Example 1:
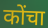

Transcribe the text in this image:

कोंचा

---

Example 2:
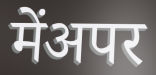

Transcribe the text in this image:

मेंअपर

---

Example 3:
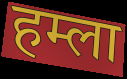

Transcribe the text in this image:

हम्ला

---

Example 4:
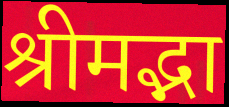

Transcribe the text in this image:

श्रीमद्भा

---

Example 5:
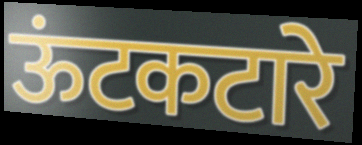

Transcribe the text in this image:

ऊंटकटारे